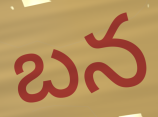
బన